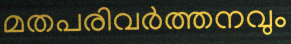
മതപരിവർത്തനവും